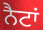
ਨੈਟਾਂ